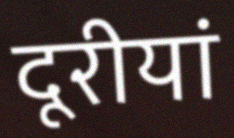
दूरीयां